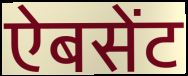
ऐबसेंट